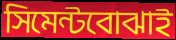
সিমেন্টবোঝাই